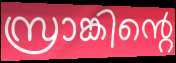
സ്രാങ്കിന്റെ